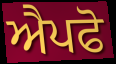
ਐਪਫੋ